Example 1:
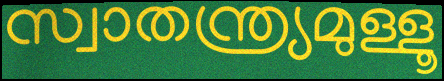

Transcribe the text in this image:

സ്വാതന്ത്ര്യമുള്ളൂ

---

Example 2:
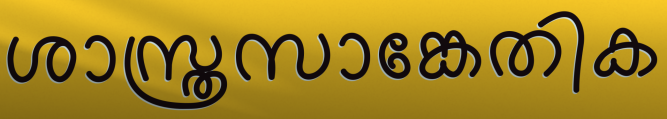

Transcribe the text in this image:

ശാസ്ത്രസാങ്കേതിക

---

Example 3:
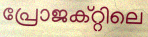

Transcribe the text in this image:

പ്രോജക്റ്റിലെ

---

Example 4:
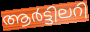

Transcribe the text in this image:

ആർട്ടിലറി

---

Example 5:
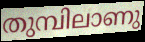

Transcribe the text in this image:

തുമ്പിലാണു